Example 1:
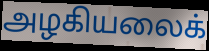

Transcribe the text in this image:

அழகியலைக்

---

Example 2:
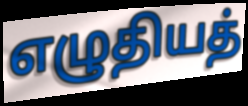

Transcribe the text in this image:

எழுதியத்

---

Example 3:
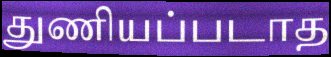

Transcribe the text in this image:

துணியப்படாத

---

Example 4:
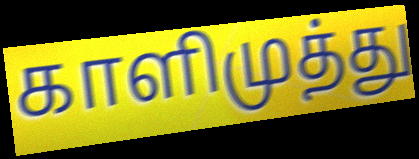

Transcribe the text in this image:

காளிமுத்து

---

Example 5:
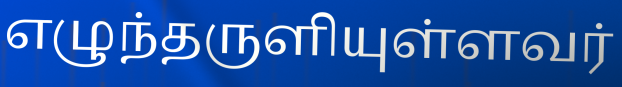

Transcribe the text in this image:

எழுந்தருளியுள்ளவர்